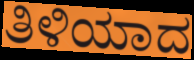
ತಿಳಿಯಾದ